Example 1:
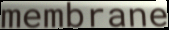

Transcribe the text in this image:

membrane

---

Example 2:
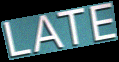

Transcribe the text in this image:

LATE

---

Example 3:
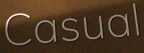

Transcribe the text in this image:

Casual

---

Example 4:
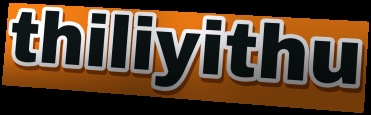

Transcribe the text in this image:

thiliyithu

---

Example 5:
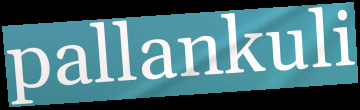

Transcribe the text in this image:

pallankuli